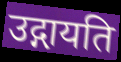
उद्गायति